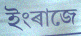
ইংৰাজে